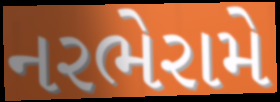
નરભેરામે